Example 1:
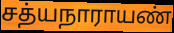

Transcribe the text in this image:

சத்யநாராயண்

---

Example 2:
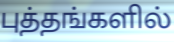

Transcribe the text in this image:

புத்தங்களில்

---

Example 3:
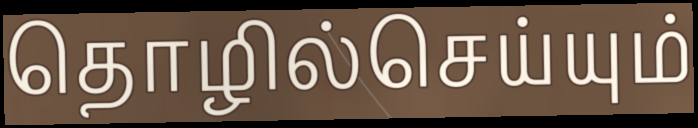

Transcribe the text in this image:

தொழில்செய்யும்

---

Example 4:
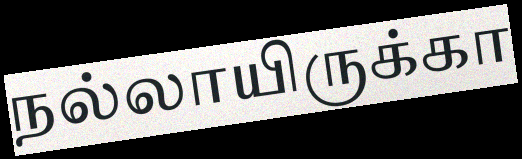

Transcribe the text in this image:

நல்லாயிருக்கா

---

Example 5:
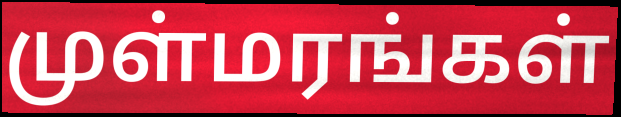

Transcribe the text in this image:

முள்மரங்கள்